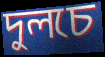
দুলচে